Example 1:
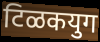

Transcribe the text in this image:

टिळकयुग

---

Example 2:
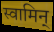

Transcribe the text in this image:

स्वामिन्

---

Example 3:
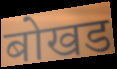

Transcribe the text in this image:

बोखड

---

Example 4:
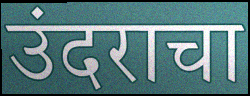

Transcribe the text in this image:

उंदराचा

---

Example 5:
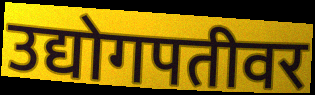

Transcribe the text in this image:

उद्योगपतीवर